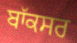
ਬਾੱਕਸਰ